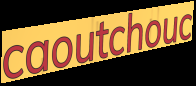
caoutchouc